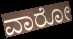
ವಾರೋ